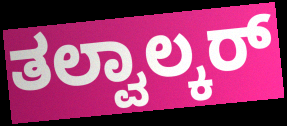
ತಲ್ವಾಲ್ಕರ್